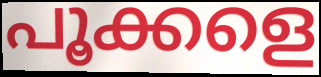
പൂക്കളെ